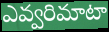
ఎవ్వరిమాటా